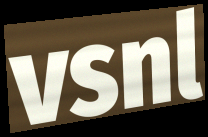
vsnl